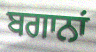
ਬਗਾਨਾਂ